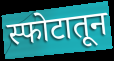
स्फोटातून